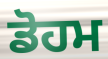
ਡੋਹਮ